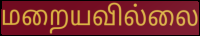
மறையவில்லை